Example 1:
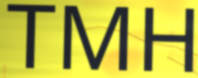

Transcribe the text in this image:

TMH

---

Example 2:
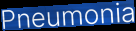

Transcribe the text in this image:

Pneumonia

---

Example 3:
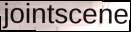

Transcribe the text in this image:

jointscene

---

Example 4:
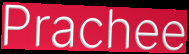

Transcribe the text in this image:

Prachee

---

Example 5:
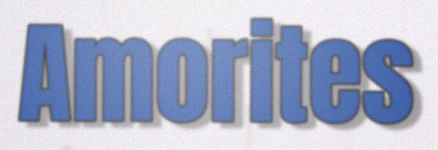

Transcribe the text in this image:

Amorites